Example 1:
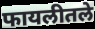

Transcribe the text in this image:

फायलीतले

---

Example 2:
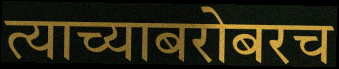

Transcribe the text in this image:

त्याच्याबरोबरच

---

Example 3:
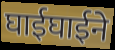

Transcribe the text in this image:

घाईघाईने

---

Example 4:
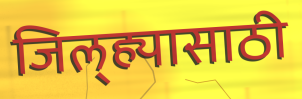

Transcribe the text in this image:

जिल्ह्यासाठी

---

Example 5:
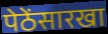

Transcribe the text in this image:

पेठेंसारखा